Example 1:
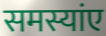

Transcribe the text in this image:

समस्यांए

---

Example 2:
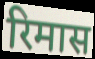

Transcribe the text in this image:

रिमास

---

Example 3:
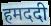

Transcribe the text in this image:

हमददी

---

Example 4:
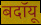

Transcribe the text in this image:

बदॉयू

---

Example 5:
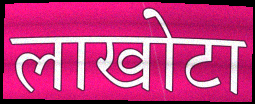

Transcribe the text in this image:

लाखोटा